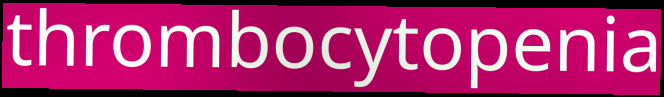
thrombocytopenia